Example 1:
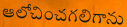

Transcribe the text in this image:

ఆలోచించగలిగాను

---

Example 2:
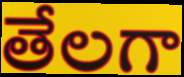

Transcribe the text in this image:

తేలగా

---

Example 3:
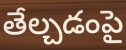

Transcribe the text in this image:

తేల్చడంపై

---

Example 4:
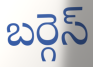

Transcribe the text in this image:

బర్గెస్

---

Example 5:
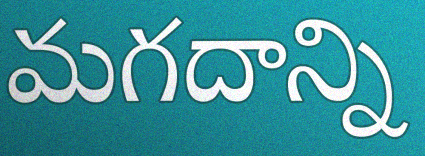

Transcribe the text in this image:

మగదాన్ని